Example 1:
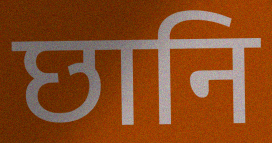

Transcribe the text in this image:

छानि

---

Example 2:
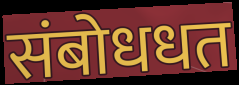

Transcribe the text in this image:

संबोधधत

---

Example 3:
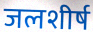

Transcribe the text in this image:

जलशीर्ष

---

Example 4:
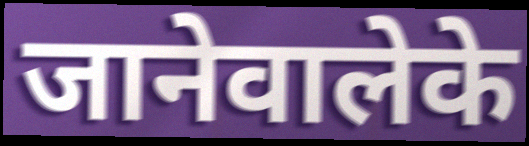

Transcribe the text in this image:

जानेवालेके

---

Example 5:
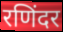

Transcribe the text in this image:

रणिंदर